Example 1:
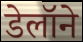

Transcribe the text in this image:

डेलॉने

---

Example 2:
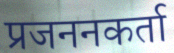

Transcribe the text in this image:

प्रजननकर्ता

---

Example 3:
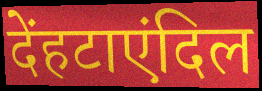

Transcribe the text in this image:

देंहटाएंदिल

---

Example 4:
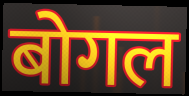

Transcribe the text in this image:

बोगल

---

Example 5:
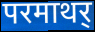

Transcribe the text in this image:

परमाथर्